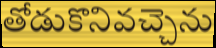
తోడుకొనివచ్చెను